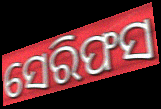
ସେରିଫସ